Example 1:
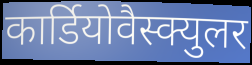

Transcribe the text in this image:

कार्डियोवैस्क्युलर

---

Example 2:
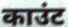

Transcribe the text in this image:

काउंट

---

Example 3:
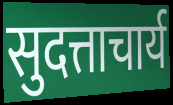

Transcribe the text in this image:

सुदत्ताचार्य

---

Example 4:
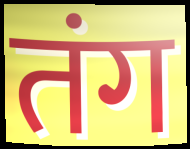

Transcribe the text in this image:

तंग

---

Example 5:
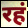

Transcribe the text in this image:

रहं